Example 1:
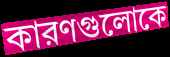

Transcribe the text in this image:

কারণগুলোকে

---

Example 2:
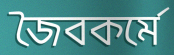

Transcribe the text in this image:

জৈবকর্মে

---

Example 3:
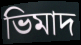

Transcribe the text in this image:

ভিমাদ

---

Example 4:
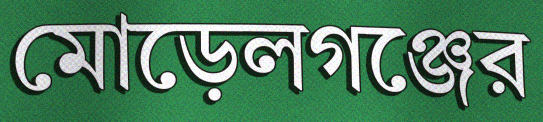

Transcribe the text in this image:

মোড়েলগঞ্জের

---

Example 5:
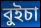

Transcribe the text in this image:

বুইচা